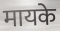
मायके